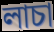
লাচা